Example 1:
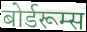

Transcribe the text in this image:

बोर्डरूम्स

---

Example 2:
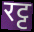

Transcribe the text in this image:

रट्ट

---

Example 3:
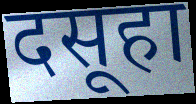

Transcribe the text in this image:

दसूहा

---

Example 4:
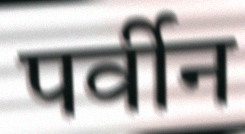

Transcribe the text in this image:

पर्वीन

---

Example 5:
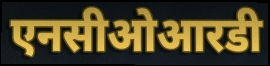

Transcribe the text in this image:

एनसीओआरडी